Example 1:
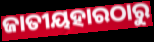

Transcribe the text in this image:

ଜାତୀୟହାରଠାରୁ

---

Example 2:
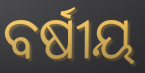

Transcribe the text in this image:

ବର୍ଷୀୟ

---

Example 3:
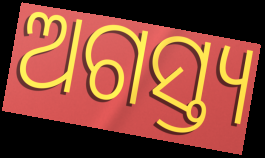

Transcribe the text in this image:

ଅଗସ୍ତ୍ୟ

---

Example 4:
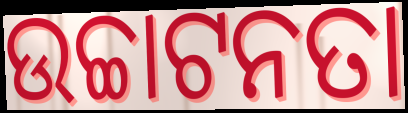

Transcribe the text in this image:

ଉଚ୍ଚାଟନତା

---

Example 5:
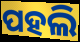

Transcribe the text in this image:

ପହଲି